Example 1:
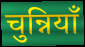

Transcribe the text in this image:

चुन्नियाँ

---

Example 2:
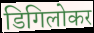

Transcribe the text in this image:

डिगिलोकर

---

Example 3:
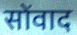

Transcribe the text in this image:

सोंवाद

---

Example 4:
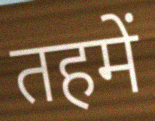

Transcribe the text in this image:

तहमें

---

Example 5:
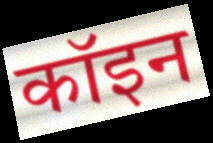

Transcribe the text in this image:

कॉइन